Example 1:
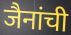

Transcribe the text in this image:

जैनांची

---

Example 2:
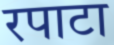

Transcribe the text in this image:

रपाटा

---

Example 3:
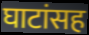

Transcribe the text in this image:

घाटांसह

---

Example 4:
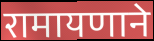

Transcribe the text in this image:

रामायणाने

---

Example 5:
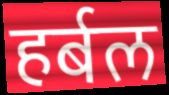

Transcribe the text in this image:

हर्बल